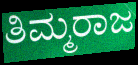
ತಿಮ್ಮರಾಜ